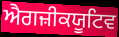
ਐਗਜ਼ੀਕਯੂਟਿਵ